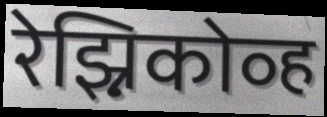
रेझ्निकोव्ह